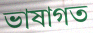
ভাষাগত